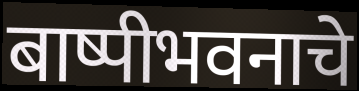
बाष्पीभवनाचे